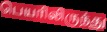
பெயரிலிருந்து